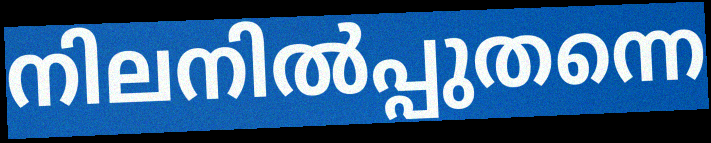
നിലനിൽപ്പുതന്നെ